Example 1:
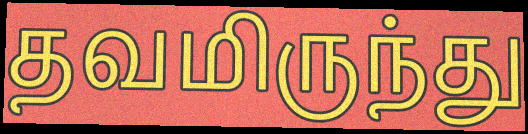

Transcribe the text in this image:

தவமிருந்து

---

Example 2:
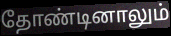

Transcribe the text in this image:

தோண்டினாலும்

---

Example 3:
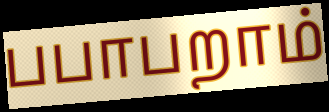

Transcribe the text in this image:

பபாபறாம்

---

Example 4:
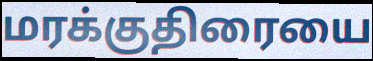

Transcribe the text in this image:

மரக்குதிரையை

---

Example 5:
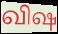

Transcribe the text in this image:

விஷ